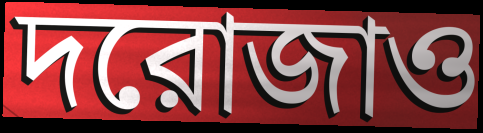
দরোজাও